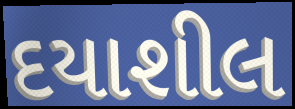
દયાશીલ